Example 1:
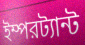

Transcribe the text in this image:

ইম্পরট্যান্ট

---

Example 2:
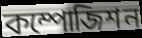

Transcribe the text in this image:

কম্পোজিশন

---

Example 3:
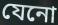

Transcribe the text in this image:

যেনো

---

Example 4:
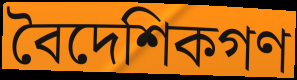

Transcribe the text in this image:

বৈদেশিকগণ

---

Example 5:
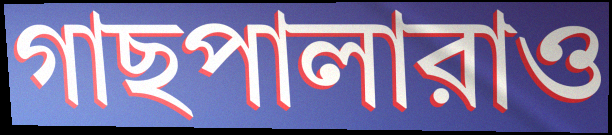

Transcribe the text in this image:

গাছপালারাও